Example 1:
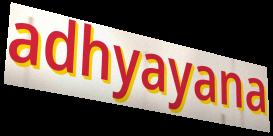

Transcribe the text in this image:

adhyayana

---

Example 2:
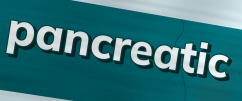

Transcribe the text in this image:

pancreatic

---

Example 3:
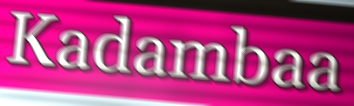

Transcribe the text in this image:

Kadambaa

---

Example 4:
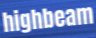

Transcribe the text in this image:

highbeam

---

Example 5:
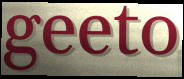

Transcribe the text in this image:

geeto